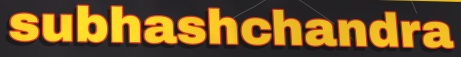
subhashchandra